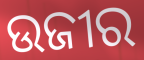
ଉଜୀର